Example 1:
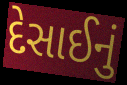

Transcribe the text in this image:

દેસાઈનું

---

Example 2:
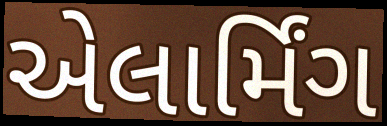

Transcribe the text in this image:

એલાર્મિંગ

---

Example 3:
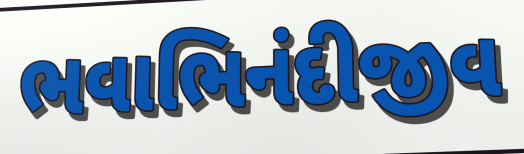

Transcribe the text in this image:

ભવાભિનંદીજીવ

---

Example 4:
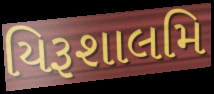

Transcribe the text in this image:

યિરૂશાલમિ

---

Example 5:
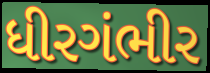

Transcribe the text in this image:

ધીરગંભીર